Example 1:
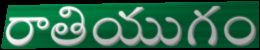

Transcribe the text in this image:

రాతియుగం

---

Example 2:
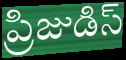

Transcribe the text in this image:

ప్రిజుడిస్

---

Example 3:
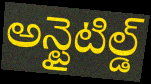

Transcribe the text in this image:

అన్టైటిల్డ్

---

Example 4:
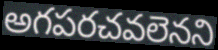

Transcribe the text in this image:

అగపరచవలెనని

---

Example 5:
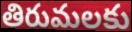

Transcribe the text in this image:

తిరుమలకు